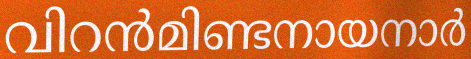
വിറൻമിണ്ടനായനാർ